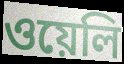
ওয়েলি